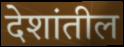
देशांतील